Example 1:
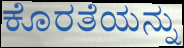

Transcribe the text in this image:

ಕೊರತೆಯನ್ನು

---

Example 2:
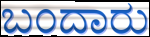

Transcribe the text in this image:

ಬಂದಾರು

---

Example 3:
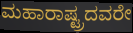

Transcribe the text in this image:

ಮಹಾರಾಷ್ಟ್ರದವರೇ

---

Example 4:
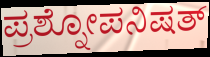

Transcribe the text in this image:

ಪ್ರಶ್ನೋಪನಿಷತ್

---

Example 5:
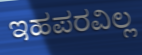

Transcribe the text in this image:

ಇಹಪರವಿಲ್ಲ